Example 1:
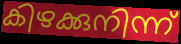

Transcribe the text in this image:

കിഴക്കുനിന്ന്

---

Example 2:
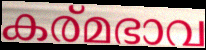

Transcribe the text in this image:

കര്മഭാവ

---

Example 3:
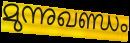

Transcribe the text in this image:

മുന്നുഖണ്ഡം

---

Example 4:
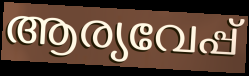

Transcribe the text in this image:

ആര്യവേപ്പ്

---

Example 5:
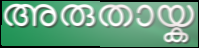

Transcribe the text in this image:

അരുതായ്ക